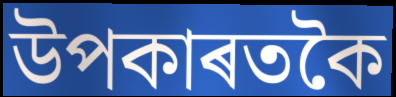
উপকাৰতকৈ